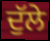
ਦੁੱਲੇ